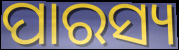
ପାରସ୍ୟ